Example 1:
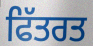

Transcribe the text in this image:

ਫਿੱਤਰਤ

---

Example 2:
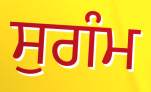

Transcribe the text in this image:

ਸੁਗੰਮ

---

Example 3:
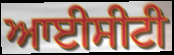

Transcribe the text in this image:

ਆਈਸੀਟੀ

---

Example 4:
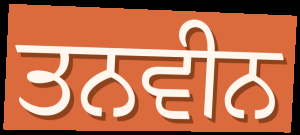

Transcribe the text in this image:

ਤਨਵੀਨ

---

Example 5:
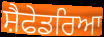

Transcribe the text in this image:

ਸ਼ੈਫੇਡਰਿਆ